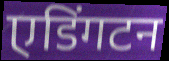
एडिंगटन